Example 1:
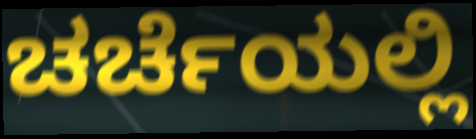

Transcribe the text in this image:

ಚರ್ಚೆಯಲ್ಲಿ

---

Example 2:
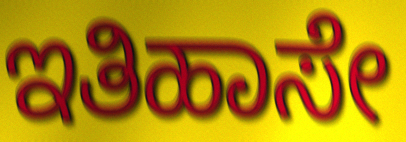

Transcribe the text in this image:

ಇತಿಹಾಸೇ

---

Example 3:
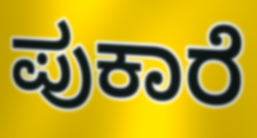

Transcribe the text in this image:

ಪುಕಾರೆ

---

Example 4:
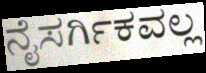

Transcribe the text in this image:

ನೈಸರ್ಗಿಕವಲ್ಲ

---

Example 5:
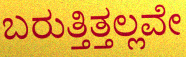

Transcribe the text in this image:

ಬರುತ್ತಿತ್ತಲ್ಲವೇ